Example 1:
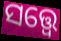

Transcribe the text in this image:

ସତ୍ତ୍ବେ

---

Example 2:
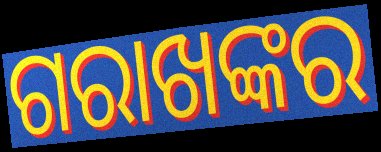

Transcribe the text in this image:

ଗରାଖଙ୍କର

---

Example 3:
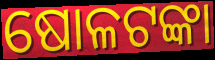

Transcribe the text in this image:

ଷୋଳଟଙ୍କା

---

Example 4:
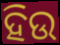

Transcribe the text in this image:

ହିଉ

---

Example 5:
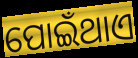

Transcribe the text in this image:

ପୋଇଁଥାଏ